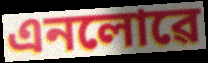
এনলোৱে